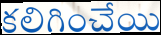
కలిగించేయి